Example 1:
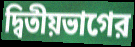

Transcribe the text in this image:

দ্বিতীয়ভাগের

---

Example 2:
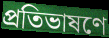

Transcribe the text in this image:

প্রতিভাষণে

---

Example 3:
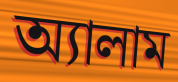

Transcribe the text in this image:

অ্যালাম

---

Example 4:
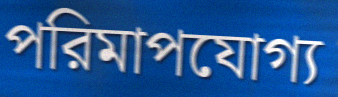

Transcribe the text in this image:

পরিমাপযোগ্য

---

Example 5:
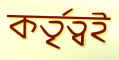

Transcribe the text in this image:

কর্তৃত্বই